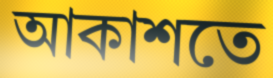
আকাশতে